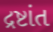
દ્રષ્ટાંત